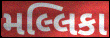
મલ્લિકા